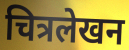
चित्रलेखन